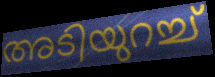
അടിയുറച്ച്